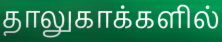
தாலுகாக்களில்